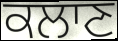
ਕਲਾਣ